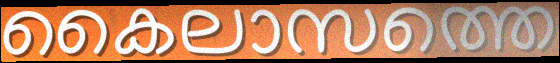
കൈലാസത്തെ